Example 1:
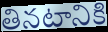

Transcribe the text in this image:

తినటానికి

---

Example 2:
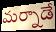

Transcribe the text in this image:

మర్నాడే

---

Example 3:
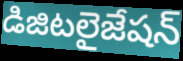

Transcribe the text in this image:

డిజిటలైజేషన్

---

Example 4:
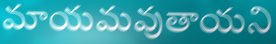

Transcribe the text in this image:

మాయమవుతాయని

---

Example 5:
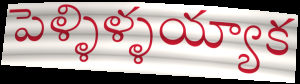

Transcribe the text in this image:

పెళ్ళిళ్ళయ్యాక